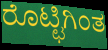
ರೊಟ್ಟಿಗಿಂತ